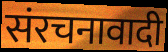
संरचनावादी